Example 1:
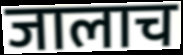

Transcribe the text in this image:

जालाच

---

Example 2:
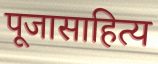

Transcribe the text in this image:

पूजासाहित्य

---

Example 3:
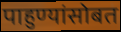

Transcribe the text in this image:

पाहुण्यांसोबत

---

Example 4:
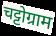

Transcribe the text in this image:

चट्टोग्राम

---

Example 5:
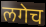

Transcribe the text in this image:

लगेच